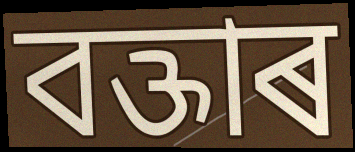
বক্তাৰ